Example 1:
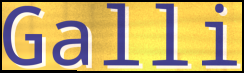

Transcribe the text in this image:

Galli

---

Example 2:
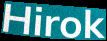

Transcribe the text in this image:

Hirok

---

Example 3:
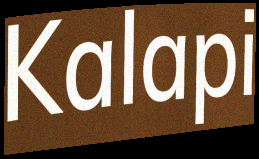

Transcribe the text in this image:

Kalapi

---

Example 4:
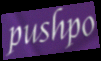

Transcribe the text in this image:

pushpo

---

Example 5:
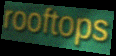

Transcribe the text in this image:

rooftops